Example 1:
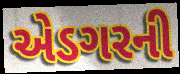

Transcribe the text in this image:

એડગરની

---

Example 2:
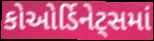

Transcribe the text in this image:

કોઓર્ડિનેટ્સમાં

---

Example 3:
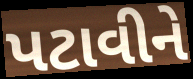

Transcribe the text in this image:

પટાવીને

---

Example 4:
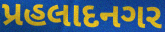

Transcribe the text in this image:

પ્રહલાદનગર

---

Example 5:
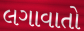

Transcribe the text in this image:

લગાવાતો